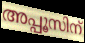
അപ്പൂസിന്